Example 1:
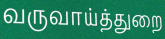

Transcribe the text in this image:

வருவாய்த்துறை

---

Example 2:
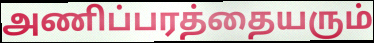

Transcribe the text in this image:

அணிப்பரத்தையரும்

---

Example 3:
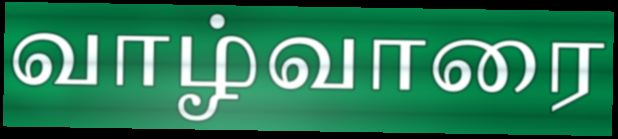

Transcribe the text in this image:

வாழ்வாரை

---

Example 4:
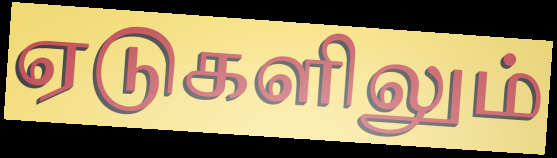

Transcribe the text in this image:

ஏடுகளிலும்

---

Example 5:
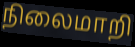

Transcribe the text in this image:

நிலைமாறி